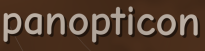
panopticon